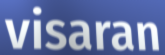
visaran